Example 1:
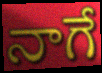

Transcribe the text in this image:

నాగే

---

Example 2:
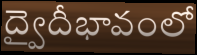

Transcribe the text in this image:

ద్వైదీభావంలో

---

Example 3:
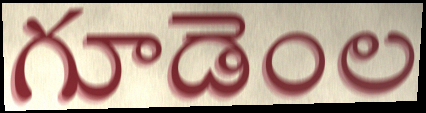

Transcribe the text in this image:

గూడెంల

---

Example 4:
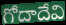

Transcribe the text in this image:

గోదాదేవి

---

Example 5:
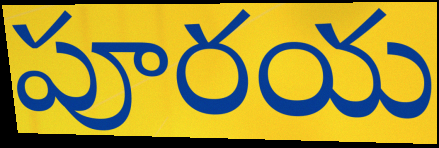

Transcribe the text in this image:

పూరయ